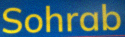
Sohrab